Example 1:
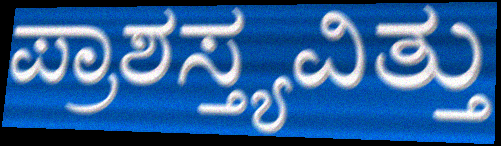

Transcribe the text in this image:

ಪ್ರಾಶಸ್ತ್ಯವಿತ್ತು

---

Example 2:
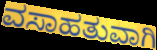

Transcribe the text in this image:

ವಸಾಹತುವಾಗಿ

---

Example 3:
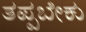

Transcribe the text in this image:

ತಪ್ಪಬೇಕು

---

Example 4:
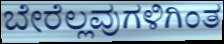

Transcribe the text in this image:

ಬೇರೆಲ್ಲವುಗಳಿಗಿಂತ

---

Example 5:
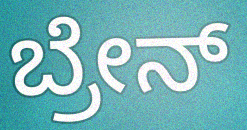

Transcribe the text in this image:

ಬ್ರೇನ್